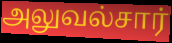
அலுவல்சார்